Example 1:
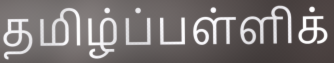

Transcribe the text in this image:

தமிழ்ப்பள்ளிக்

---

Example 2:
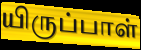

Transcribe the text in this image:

யிருப்பாள்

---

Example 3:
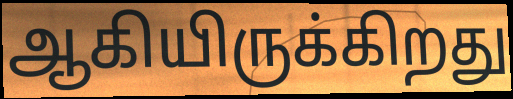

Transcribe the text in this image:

ஆகியிருக்கிறது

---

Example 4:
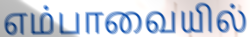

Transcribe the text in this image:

எம்பாவையில்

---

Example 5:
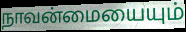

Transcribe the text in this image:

நாவன்மையையும்